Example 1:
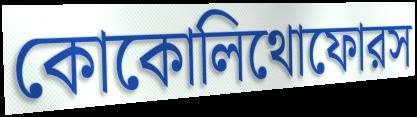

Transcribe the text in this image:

কোকোলিথোফোরস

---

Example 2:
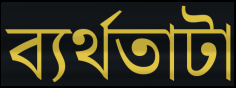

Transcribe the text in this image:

ব্যর্থতাটা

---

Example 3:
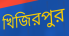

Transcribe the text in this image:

খিজিরপুর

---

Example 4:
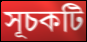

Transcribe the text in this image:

সূচকটি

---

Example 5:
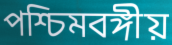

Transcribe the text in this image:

পশ্চিমবঙ্গীয়